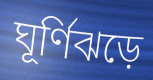
ঘূর্ণিঝড়ে